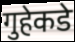
गुहेकडे